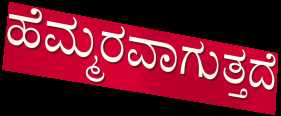
ಹೆಮ್ಮರವಾಗುತ್ತದೆ